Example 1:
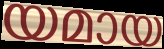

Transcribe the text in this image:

യമായ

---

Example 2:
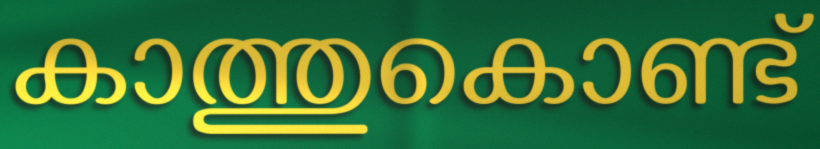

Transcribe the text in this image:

കാത്തുകൊണ്ട്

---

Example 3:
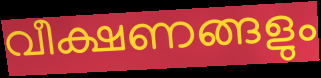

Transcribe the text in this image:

വീക്ഷണങ്ങളും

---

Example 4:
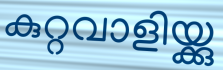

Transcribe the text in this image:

കുറ്റവാളിയ്ക്കു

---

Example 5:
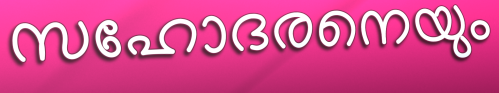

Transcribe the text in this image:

സഹോദരനെയും